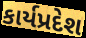
કાર્યપ્રદેશ